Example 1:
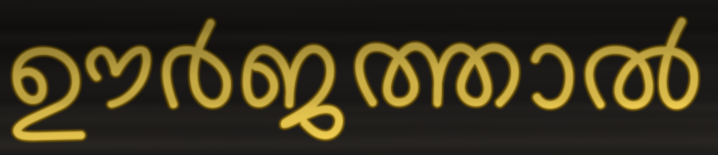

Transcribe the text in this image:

ഊർജത്താൽ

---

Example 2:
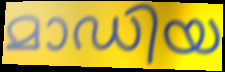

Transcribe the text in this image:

മാഡിയ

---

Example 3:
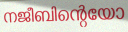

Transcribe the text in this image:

നജീബിന്റെയോ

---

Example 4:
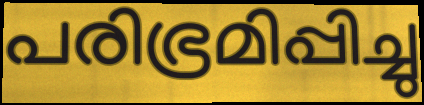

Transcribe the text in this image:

പരിഭ്രമിപ്പിച്ചു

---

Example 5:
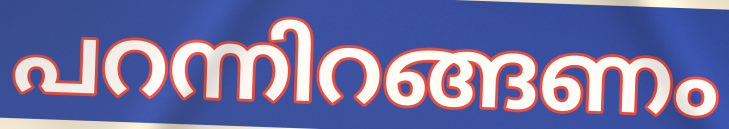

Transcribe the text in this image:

പറന്നിറങ്ങണം